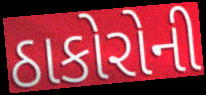
ઠાકોરોની